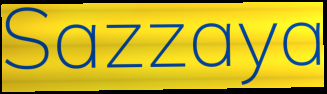
Sazzaya